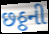
છઠ્ઠની